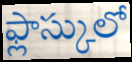
ఫ్లాస్కులో